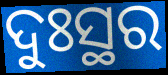
ଦୁଃସ୍ଥର